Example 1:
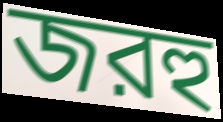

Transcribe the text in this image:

জরহু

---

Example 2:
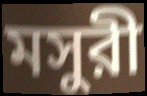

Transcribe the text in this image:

মসুরী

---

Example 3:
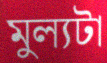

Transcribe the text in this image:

মুল্যটা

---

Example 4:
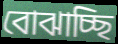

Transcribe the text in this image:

বোঝাচ্ছি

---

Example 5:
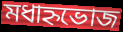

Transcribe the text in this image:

মধাহ্নভোজ